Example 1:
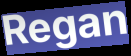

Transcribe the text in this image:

Regan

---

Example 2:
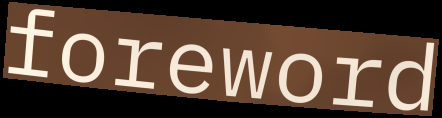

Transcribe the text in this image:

foreword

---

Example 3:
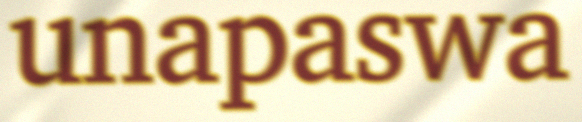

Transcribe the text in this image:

unapaswa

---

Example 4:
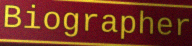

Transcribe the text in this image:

Biographer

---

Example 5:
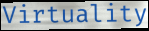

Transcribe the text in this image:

Virtuality